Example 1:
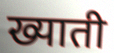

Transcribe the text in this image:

ख्याती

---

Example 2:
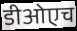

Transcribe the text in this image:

डीओएच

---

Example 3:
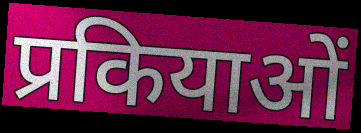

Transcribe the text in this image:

प्रकियाओं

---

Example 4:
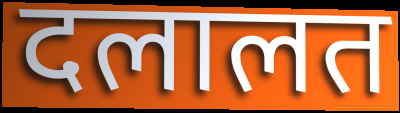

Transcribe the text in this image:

दलालत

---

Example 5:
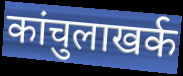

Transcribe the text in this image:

कांचुलाखर्क